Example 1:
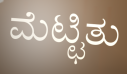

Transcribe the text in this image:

ಮೆಟ್ಟಿತು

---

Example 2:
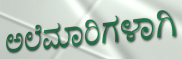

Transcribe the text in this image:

ಅಲೆಮಾರಿಗಳಾಗಿ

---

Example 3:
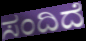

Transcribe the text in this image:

ಸಂದಿದೆ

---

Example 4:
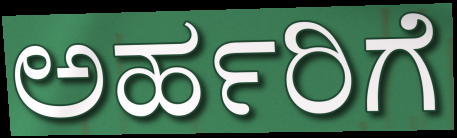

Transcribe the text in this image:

ಅರ್ಹರಿಗೆ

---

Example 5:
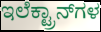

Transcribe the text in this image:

ಇಲೆಕ್ಟ್ರಾನ್‍ಗಳ